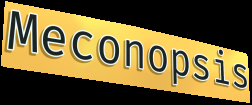
Meconopsis